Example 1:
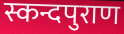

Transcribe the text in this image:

स्कन्दपुराण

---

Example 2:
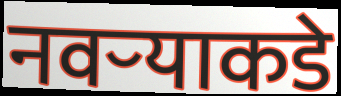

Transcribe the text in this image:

नवऱ्याकडे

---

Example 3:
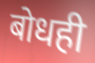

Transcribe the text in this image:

बोधही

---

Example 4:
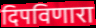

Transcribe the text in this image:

दिपविणारा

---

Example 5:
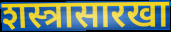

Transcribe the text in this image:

शस्त्रासारखा